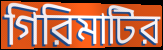
গিরিমাটির